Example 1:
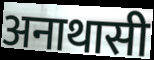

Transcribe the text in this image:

अनाथासी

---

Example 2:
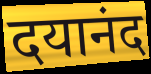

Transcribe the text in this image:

दयानंद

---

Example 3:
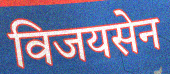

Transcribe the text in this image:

विजयसेन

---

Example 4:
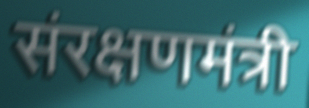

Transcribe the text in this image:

संरक्षणमंत्री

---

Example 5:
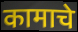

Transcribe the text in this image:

कामाचे